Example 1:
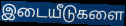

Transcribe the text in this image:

இடையீடுகளை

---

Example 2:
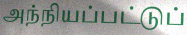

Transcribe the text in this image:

அந்நியப்பட்டுப்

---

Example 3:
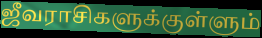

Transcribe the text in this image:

ஜீவராசிகளுக்குள்ளும்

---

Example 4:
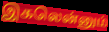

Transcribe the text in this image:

இகலென்னும்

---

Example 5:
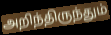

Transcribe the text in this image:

அறிந்திருந்தும்